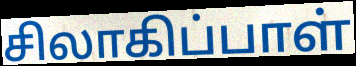
சிலாகிப்பாள்